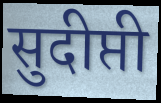
सुदीप्ती